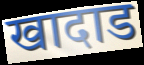
खादाड